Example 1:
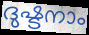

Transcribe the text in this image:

ദുഷ്ടനാം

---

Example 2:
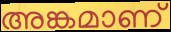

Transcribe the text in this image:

അങ്കമാണ്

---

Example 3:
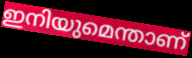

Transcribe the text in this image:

ഇനിയുമെന്താണ്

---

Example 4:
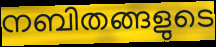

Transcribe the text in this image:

നബിതങ്ങളുടെ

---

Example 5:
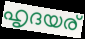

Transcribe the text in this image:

ഹൃദയര്